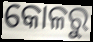
କୋଳରୁ